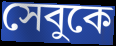
সেবুকে